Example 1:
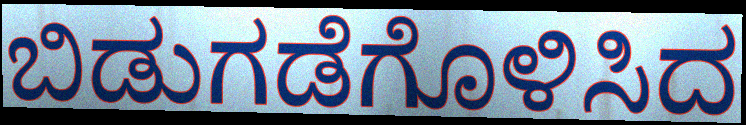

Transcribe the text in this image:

ಬಿಡುಗಡೆಗೊಳಿಸಿದ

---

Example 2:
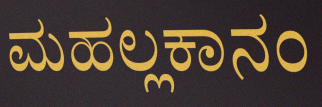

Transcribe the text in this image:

ಮಹಲ್ಲಕಾನಂ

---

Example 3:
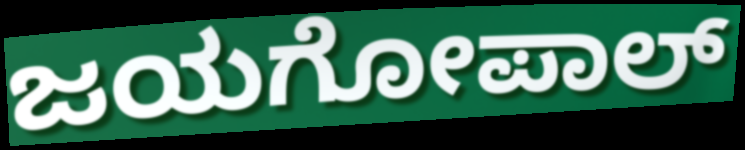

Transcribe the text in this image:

ಜಯಗೋಪಾಲ್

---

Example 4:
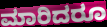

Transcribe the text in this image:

ಮಾರಿದರೂ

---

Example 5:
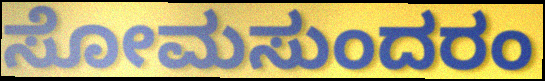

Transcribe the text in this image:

ಸೋಮಸುಂದರಂ